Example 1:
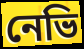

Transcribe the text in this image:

নেভি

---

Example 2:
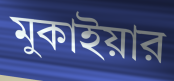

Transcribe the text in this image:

মুকাইয়ার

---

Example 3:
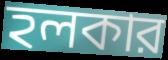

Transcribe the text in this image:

হলকার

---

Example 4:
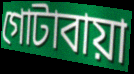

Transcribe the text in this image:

গোটাবায়া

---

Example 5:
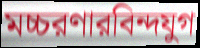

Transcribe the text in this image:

মচ্চরণারবিন্দযুগ